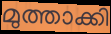
മുത്താക്കി